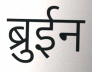
ब्रुईन